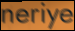
neriye